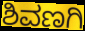
ಶಿವಣಗಿ